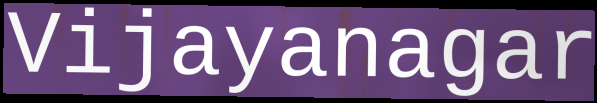
Vijayanagar